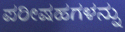
ಪರೀಷಹಗಳನ್ನು